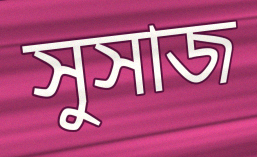
সুসাজ